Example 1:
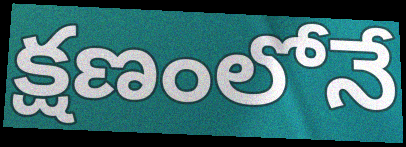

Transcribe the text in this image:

క్షణంలోనే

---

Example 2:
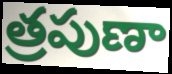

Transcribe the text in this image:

త్రపుణా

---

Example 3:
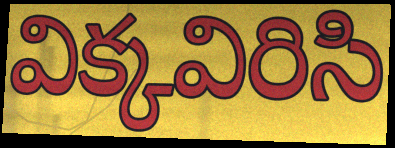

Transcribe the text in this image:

విక్కవిరిసి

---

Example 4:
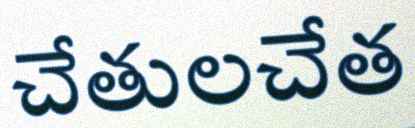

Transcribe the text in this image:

చేతులచేత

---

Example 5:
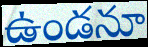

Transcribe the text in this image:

ఉండనూ